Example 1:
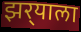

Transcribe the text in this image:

झर्‍याला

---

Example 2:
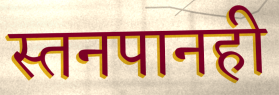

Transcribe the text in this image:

स्तनपानही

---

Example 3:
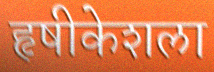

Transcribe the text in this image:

हृषीकेशला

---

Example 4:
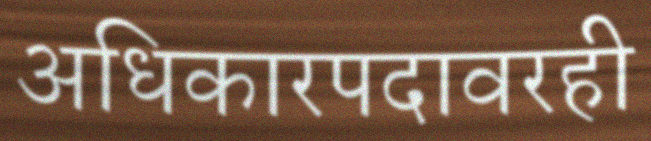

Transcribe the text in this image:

अधिकारपदावरही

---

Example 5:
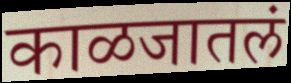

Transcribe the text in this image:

काळजातलं